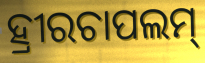
ହ୍ରୀରଚାପଲମ୍